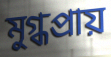
মুগ্ধপ্রায়